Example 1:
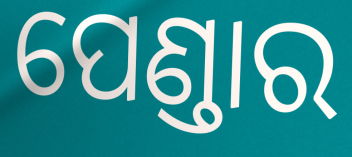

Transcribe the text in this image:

ପେଣ୍ଡାର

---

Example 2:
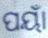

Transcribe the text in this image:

ପୟାଁ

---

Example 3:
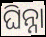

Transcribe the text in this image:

ଘିନ୍ନା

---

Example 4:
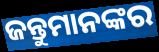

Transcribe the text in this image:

ଜନ୍ତୁମାନଙ୍କର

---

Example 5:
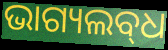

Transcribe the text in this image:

ଭାଗ୍ୟଲବ୍‌ଧ